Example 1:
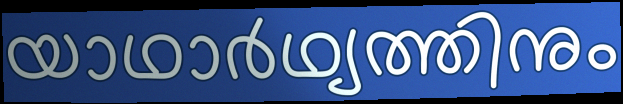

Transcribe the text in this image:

യാഥാർഥ്യത്തിനും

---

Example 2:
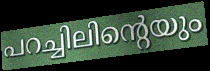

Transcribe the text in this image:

പറച്ചിലിന്റെയും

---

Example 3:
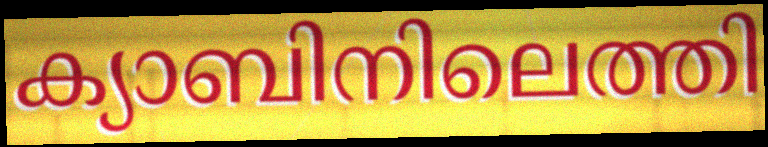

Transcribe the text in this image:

ക്യാബിനിലെത്തി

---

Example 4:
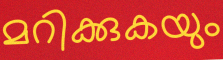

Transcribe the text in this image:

മറിക്കുകയും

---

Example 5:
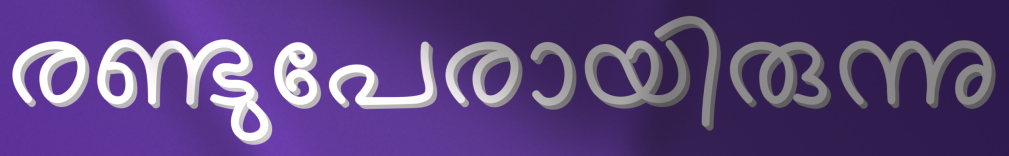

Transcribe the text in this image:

രണ്ടുപേരായിരുന്നു